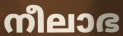
നീലാഭ